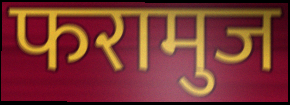
फरामुज